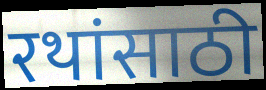
रथांसाठी